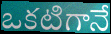
ఒకటిగానే